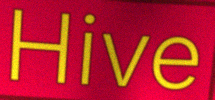
Hive